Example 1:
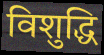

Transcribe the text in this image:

विशुद्धि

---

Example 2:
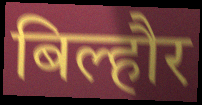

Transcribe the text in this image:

बिल्हौर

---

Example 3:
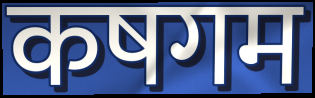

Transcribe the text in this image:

कषगम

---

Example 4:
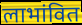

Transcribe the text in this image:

लाभांवित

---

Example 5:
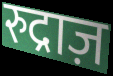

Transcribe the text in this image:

रुद्राज़